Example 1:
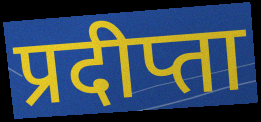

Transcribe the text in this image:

प्रदीप्ता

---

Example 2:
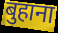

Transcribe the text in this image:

बुहाना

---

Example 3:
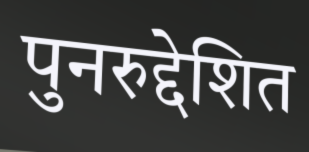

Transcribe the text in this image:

पुनरुद्देशित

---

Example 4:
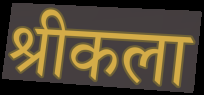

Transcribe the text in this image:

श्रीकला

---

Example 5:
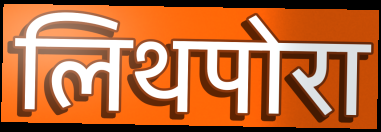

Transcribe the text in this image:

लिथपोरा